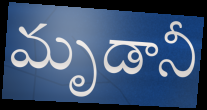
మృడానీ